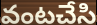
వంటచేసి